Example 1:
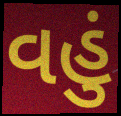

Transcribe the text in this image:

વહું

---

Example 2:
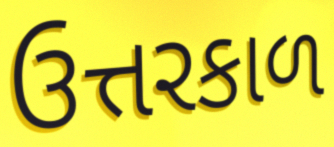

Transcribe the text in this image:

ઉત્તરકાળ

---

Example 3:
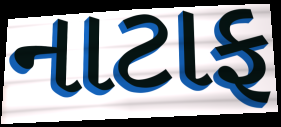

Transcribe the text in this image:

નાટાફ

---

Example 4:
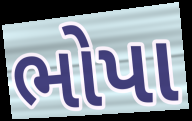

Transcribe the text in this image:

ભોપા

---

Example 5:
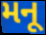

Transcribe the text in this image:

મનૂ